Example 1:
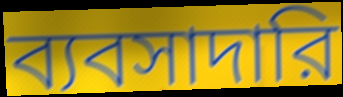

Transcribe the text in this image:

ব্যবসাদারি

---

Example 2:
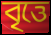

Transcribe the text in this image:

বৃত্তে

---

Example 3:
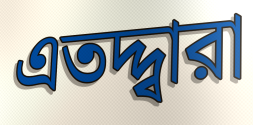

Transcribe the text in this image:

এতদ্দ্বারা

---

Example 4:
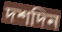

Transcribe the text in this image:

দশদিন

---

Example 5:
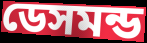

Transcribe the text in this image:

ডেসমন্ড